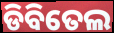
ଡିବିତେଲ